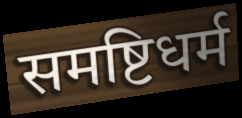
समष्टिधर्म